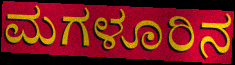
ಮಗಳೂರಿನ